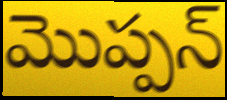
మొప్పన్